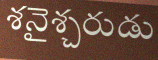
శనైశ్చరుడు